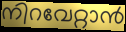
നിറവേറ്റാൻ